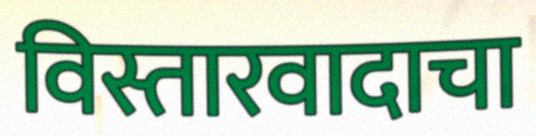
विस्तारवादाचा